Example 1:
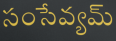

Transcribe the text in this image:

సంసేవ్యమ్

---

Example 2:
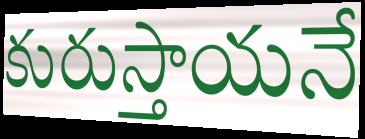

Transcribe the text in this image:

కురుస్తాయనే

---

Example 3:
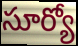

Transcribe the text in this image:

సూర్యో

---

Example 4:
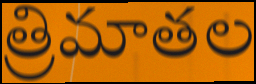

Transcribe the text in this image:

త్రిమాతల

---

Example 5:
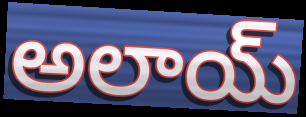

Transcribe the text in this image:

అలాయ్